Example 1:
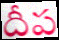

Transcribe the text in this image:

దీప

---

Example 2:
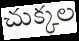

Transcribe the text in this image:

చుక్కల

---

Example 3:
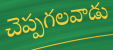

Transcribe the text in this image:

చెప్పగలవాడు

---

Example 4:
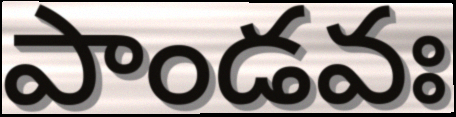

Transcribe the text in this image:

పాండవః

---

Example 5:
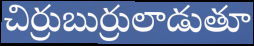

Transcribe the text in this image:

చిర్రుబుర్రులాడుతూ